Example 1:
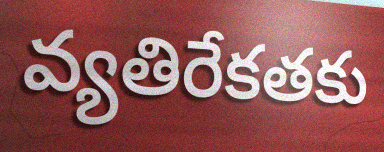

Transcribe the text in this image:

వ్యతిరేకతకు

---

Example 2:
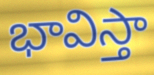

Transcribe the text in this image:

భావిస్తా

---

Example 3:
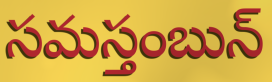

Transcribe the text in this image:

సమస్తంబున్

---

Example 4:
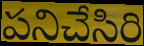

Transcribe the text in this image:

పనిచేసిరి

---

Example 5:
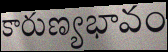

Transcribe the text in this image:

కారుణ్యభావం